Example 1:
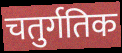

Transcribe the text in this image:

चतुर्गतिक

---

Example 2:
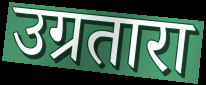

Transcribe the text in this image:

उग्रतारा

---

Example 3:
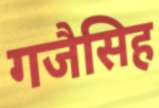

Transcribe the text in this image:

गजैसिह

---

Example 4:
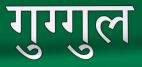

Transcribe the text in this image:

गुग्‍गुल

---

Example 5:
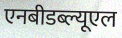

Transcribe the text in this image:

एनबीडब्ल्यूएल